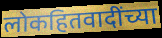
लोकहितवादींच्या